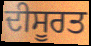
ਦੀਸੂਰਤ